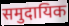
समुदायिक